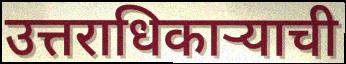
उत्तराधिकाऱ्याची